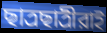
ছাত্রছাত্রীরাই